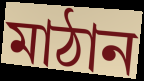
মাঠান